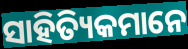
ସାହିତ୍ୟିକମାନେ